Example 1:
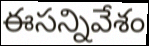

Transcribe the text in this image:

ఈసన్నివేశం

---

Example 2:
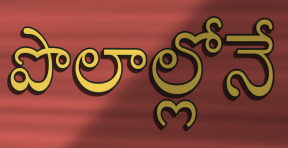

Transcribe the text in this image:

పొలాల్లోనే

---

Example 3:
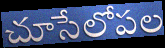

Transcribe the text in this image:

చూసేలోపల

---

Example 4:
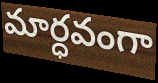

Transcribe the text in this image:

మార్ధవంగా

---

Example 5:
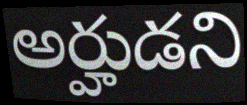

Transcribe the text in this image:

అర్హుడని